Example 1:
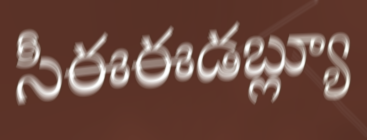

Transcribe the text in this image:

సీఈఈడబ్ల్యూ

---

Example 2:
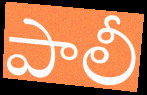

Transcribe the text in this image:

పాలీ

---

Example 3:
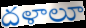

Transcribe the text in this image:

దళాలూ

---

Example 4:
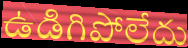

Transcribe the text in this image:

ఉడిగిపోలేదు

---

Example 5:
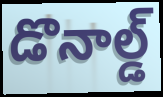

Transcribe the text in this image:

డొనాల్డ్